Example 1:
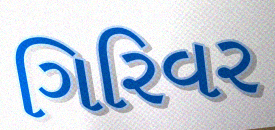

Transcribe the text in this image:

ગિરિવર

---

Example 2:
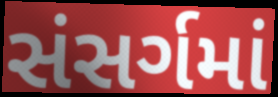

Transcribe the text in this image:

સંસર્ગમાં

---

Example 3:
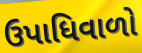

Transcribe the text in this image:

ઉપાધિવાળો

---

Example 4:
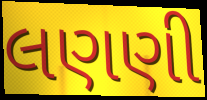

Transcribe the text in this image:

લણણી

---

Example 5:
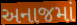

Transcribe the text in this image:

અનાજમાં